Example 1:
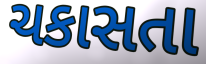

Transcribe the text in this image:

ચકાસતા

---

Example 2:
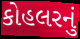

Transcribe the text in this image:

કોહલરનું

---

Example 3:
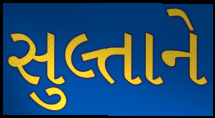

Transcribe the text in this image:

સુલ્તાને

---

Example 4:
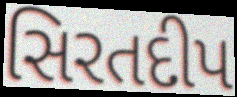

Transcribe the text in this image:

સિરતદીપ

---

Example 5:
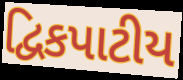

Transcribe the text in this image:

દ્વિકપાટીય